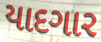
યાદગાર